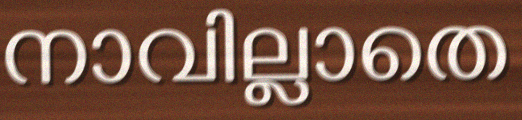
നാവില്ലാതെ